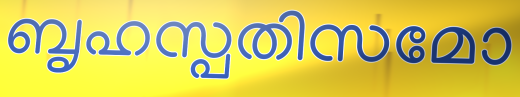
ബൃഹസ്പതിസമോ